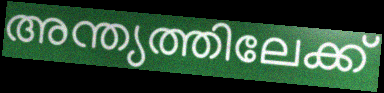
അന്ത്യത്തിലേക്ക്